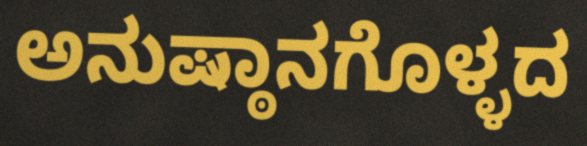
ಅನುಷ್ಠಾನಗೊಳ್ಳದ